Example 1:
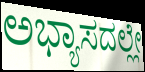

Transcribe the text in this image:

ಅಭ್ಯಾಸದಲ್ಲೇ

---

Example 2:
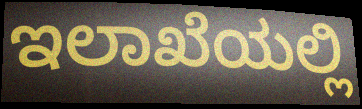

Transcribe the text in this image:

ಇಲಾಖೆಯಲ್ಲಿ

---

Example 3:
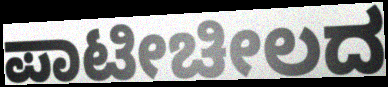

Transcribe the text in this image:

ಪಾಟೀಚೀಲದ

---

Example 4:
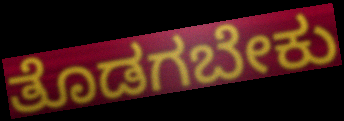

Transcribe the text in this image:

ತೊಡಗಬೇಕು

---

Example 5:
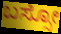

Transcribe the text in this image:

ಬಸ್ಸೋ